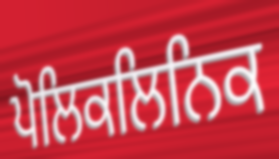
ਪੋਲਿਕਲਿਨਿਕ